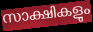
സാക്ഷികളും